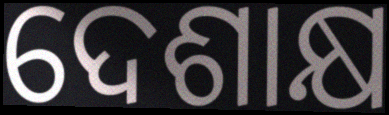
ଦେଶାକ୍ଷ